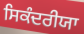
ਸਿਕੰਦਰੀਯਾ